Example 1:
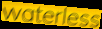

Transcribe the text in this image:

waterless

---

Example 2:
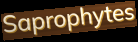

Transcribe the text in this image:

Saprophytes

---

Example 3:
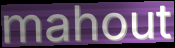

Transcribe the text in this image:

mahout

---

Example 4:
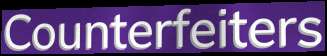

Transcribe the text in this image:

Counterfeiters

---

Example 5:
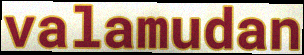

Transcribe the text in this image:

valamudan